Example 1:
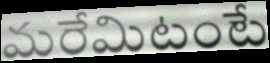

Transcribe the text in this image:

మరేమిటంటే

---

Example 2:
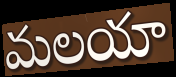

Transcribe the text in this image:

మలయా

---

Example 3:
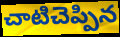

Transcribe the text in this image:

చాటిచెప్పిన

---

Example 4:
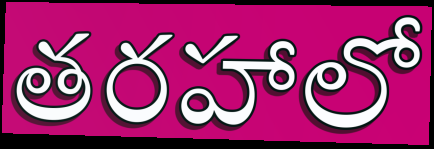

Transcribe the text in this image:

తరహాలో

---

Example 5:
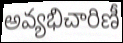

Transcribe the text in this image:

అవ్యభిచారిణీ